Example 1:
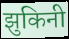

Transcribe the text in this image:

झुकिनी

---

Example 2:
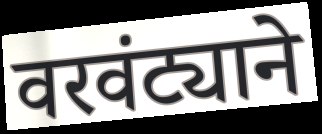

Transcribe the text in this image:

वरवंट्याने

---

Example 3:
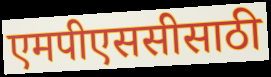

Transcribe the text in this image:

एमपीएससीसाठी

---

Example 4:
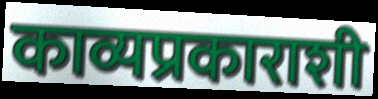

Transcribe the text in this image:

काव्यप्रकाराशी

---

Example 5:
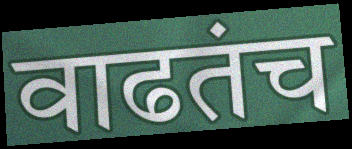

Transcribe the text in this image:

वाढतंच